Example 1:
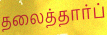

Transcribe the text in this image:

தலைத்தார்ப்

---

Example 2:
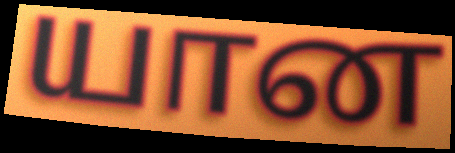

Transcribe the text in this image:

யான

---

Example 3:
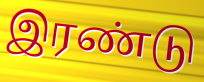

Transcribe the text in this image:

இரண்டு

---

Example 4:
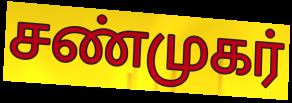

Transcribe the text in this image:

சண்முகர்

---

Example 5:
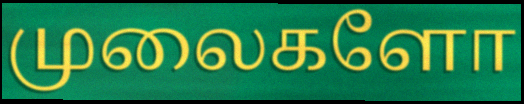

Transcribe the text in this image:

முலைகளோ